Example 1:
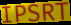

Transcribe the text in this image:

IPSRT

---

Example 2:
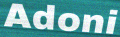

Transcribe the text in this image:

Adoni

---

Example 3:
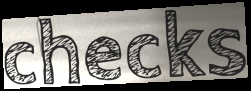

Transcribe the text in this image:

checks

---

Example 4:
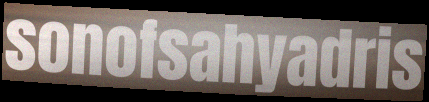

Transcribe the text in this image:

sonofsahyadris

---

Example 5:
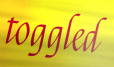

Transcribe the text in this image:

toggled